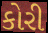
કોરી